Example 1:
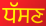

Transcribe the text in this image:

ਧੱਸਣ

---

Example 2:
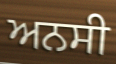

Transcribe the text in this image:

ਅਨਸੀ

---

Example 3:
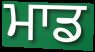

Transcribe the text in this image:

ਮਾਡ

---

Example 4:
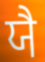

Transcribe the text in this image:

ਯੈ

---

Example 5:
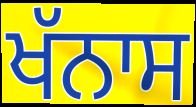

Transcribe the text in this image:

ਖੱਨਾਸ